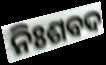
ନିଃଶବଦ